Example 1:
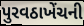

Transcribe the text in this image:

પુરવઠાખેંચની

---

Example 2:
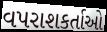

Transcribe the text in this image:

વપરાશકર્તાઓ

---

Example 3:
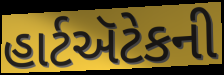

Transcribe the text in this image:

હાર્ટઍટેકની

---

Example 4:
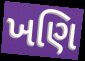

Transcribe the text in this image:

ખણિ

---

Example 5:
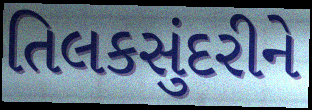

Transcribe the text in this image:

તિલકસુંદરીને